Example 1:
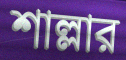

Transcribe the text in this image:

শাল্লার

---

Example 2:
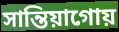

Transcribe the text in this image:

সান্তিয়াগোয়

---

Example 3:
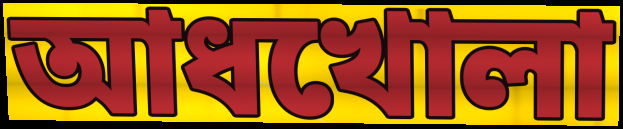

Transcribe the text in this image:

আধখোলা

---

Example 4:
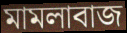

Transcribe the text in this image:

মামলাবাজ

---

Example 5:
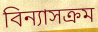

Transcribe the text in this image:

বিন্যাসক্রম